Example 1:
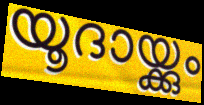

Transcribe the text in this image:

യൂദായ്ക്കും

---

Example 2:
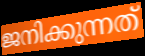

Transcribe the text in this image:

ജനിക്കുന്നത്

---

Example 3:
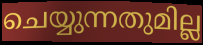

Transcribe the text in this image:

ചെയ്യുന്നതുമില്ല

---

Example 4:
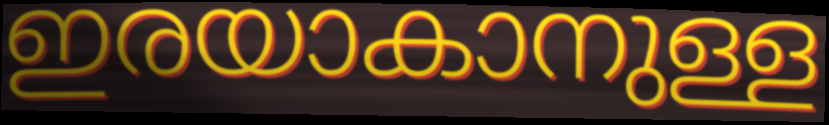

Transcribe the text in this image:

ഇരയാകാനുള്ള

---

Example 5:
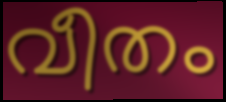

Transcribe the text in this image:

വീതം